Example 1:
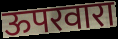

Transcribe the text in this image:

ऊपरवारा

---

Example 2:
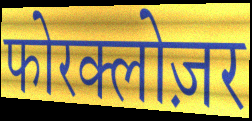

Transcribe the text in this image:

फोरक्लोज़र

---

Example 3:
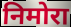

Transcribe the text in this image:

निमोरा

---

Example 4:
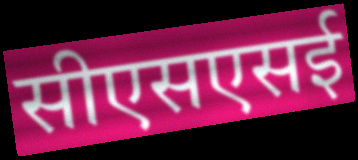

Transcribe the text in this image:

सीएसएसई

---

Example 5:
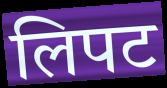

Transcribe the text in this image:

लिपट